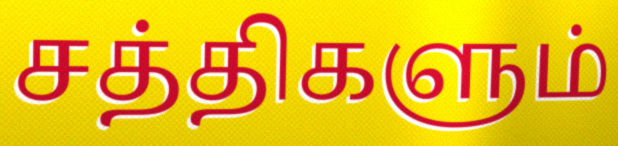
சத்திகளும்